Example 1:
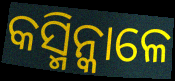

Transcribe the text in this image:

କସ୍ମିନ୍କାଳେ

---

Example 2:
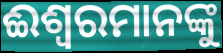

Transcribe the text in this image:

ଈଶ୍ୱରମାନଙ୍କୁ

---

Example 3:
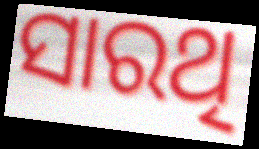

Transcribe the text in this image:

ସାରଥି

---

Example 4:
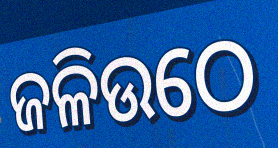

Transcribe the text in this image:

ଜଳିଉଠେ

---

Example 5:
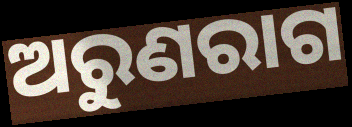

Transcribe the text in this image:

ଅରୁଣରାଗ